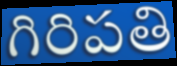
గిరిపతి